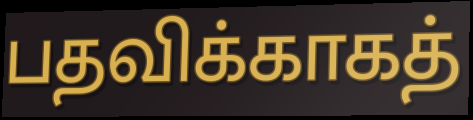
பதவிக்காகத்